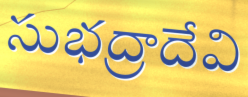
సుభద్రాదేవి